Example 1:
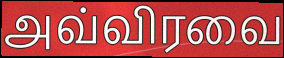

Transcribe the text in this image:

அவ்விரவை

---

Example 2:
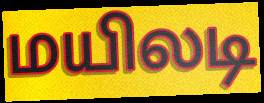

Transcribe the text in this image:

மயிலடி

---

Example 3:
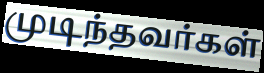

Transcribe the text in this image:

முடிந்தவர்கள்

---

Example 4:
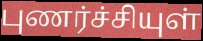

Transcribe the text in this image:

புணர்ச்சியுள்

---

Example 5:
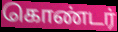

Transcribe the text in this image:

கொண்டர்